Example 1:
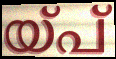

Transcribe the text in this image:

യ്പ്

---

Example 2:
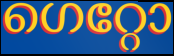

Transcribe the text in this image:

ഗെറ്റോ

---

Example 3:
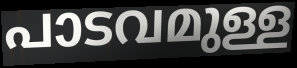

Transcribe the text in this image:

പാടവമുള്ള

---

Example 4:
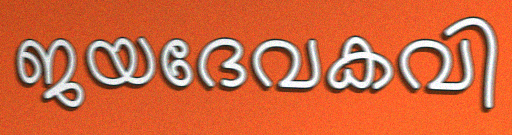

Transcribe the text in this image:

ജയദേവകവി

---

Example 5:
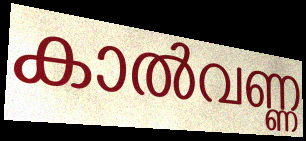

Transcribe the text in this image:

കാൽവണ്ണ